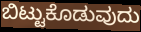
ಬಿಟ್ಟುಕೊಡುವುದು